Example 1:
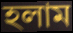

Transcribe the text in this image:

হলাম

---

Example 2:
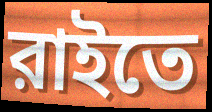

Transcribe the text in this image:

রাইতে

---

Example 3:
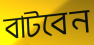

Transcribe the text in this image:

বাটবেন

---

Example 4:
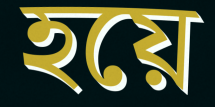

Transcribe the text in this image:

হয়ে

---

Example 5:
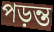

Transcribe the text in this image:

পড়ন্ত